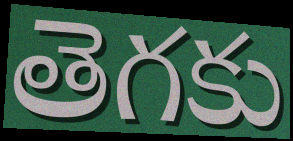
తెగకు